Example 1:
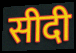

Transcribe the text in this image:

सीदी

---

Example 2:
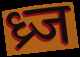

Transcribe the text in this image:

ध्र्ज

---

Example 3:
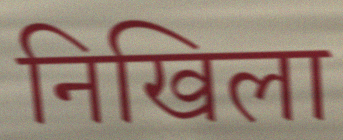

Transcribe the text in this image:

निखिला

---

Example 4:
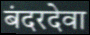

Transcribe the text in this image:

बंदरदेवा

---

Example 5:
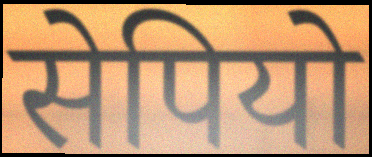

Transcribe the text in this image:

सेपियो